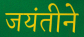
जयंतीने